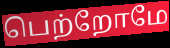
பெற்றோமே